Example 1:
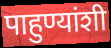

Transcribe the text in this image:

पाहुण्यांशी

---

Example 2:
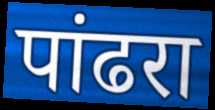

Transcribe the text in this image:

पांढरा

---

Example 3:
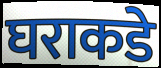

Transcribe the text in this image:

घराकडे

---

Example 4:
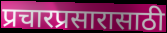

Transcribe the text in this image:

प्रचारप्रसारासाठी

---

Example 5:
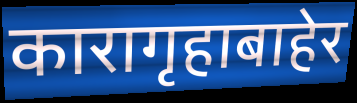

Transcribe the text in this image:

कारागृहाबाहेर